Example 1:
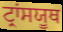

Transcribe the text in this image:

ਟ੍ਰਾਂਸਯੂਥ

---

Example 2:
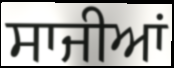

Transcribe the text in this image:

ਸਾਜੀਆਂ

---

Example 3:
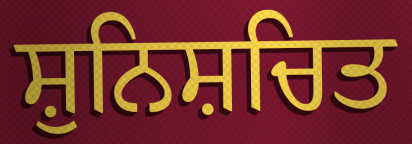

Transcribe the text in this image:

ਸ਼ੁਨਿਸ਼ਚਿਤ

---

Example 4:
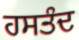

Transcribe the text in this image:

ਹਸਤੰਦ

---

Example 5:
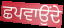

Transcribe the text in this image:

ਛਪਵਾਉਂਦੇ